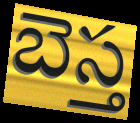
బెస్త